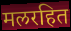
मलरहित